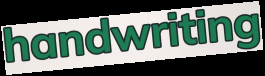
handwriting